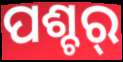
ପଶ୍ଚର୍